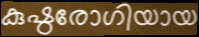
കുഷ്ഠരോഗിയായ